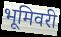
भूमिवरी